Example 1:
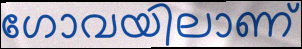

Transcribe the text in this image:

ഗോവയിലാണ്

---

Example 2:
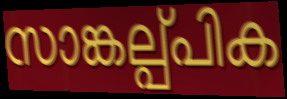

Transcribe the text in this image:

സാങ്കല്പ്പിക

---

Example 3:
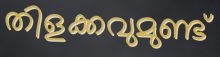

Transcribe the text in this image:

തിളക്കവുമുണ്ട്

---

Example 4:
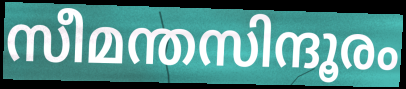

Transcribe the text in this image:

സീമന്തസിന്ദൂരം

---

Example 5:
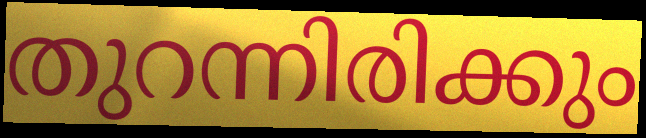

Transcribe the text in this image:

തുറന്നിരിക്കും